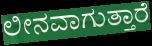
ಲೀನವಾಗುತ್ತಾರೆ